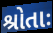
શ્રોતાઃ